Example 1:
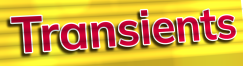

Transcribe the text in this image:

Transients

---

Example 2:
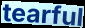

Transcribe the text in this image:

tearful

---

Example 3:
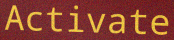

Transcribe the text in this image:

Activate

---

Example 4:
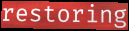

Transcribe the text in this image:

restoring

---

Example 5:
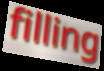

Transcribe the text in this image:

filling